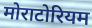
मोराटोरियम